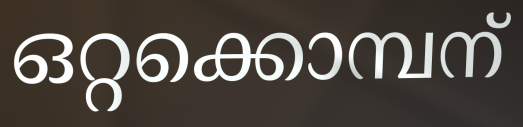
ഒറ്റക്കൊമ്പന്